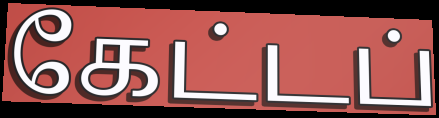
கேட்டப்